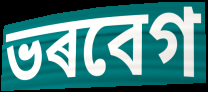
ভৰবেগ